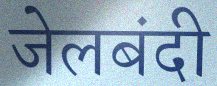
जेलबंदी